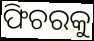
ଫିଚରକୁ